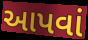
આપવાં